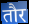
तौर